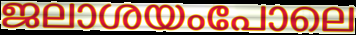
ജലാശയംപോലെ